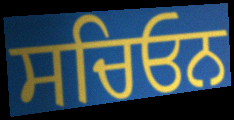
ਸਚਿਓਨ